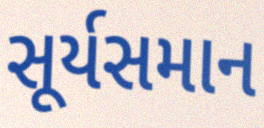
સૂર્યસમાન